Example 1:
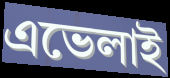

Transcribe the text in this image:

এভেলাই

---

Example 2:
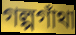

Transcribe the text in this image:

গল্পগাঁথা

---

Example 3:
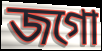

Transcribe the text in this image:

জগো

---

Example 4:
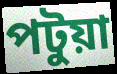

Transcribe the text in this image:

পটুয়া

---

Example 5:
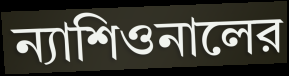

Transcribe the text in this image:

ন্যাশিওনালের